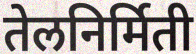
तेलनिर्मिती